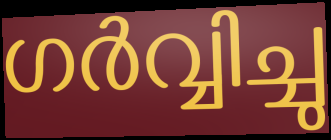
ഗർവ്വിച്ചു